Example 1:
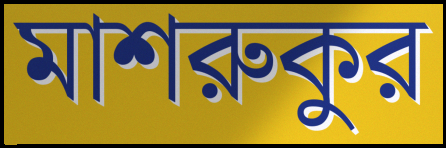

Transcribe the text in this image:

মাশরুকুর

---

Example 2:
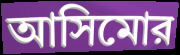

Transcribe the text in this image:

আসিমোর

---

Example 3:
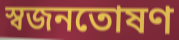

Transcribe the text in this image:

স্বজনতোষণ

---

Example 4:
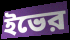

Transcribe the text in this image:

ইভের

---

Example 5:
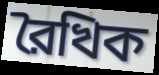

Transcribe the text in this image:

রৈখিক